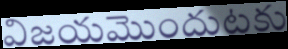
విజయమొందుటకు